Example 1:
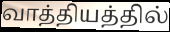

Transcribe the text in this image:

வாத்தியத்தில்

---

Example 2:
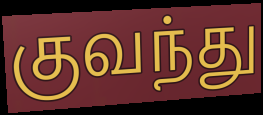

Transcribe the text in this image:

குவந்து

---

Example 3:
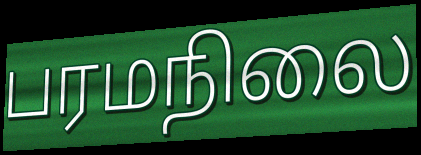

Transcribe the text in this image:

பரமநிலை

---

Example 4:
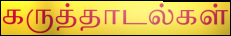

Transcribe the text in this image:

கருத்தாடல்கள்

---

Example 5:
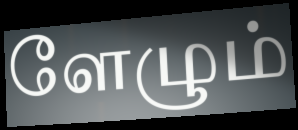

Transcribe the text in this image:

ளேழும்